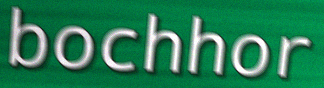
bochhor